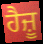
ਹੈਜ਼ੂ